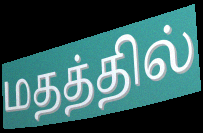
மதத்தில்